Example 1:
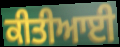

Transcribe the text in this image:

ਕੀਤੀਆਈ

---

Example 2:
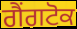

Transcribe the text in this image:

ਗੈਂਗਟੋਕ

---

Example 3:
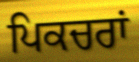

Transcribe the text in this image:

ਪਿਕਚਰਾਂ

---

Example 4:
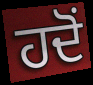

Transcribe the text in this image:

ਹਦੋਂ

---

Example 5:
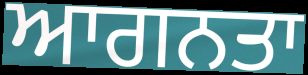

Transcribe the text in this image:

ਆਗਨਤਾ